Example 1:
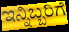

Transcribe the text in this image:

ಇನ್ನಿಬ್ಬರಿಗೆ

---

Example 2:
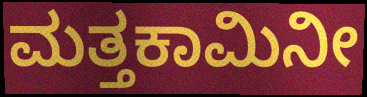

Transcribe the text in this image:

ಮತ್ತಕಾಮಿನೀ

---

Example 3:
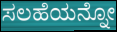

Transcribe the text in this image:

ಸಲಹೆಯನ್ನೋ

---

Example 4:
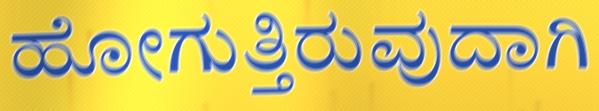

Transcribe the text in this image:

ಹೋಗುತ್ತಿರುವುದಾಗಿ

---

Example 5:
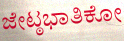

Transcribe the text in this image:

ಜೇಟ್ಠಭಾತಿಕೋ